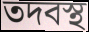
তদবস্থ